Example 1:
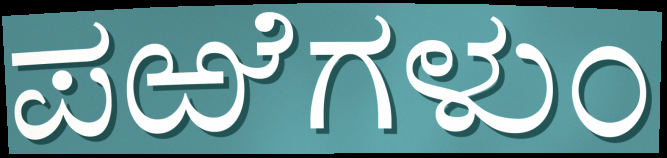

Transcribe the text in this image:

ಪಱೆಗಳುಂ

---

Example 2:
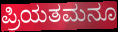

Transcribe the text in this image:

ಪ್ರಿಯತಮನೂ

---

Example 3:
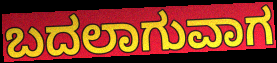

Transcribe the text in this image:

ಬದಲಾಗುವಾಗ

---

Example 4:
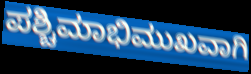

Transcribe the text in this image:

ಪಶ್ಚಿಮಾಭಿಮುಖವಾಗಿ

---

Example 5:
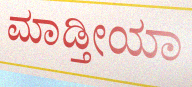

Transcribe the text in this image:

ಮಾಡ್ತೀಯಾ